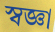
স্বজ্ঞা